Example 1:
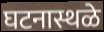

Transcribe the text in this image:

घटनास्थळे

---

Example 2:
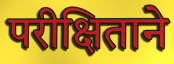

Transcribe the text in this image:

परीक्षिताने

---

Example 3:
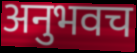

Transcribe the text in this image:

अनुभवच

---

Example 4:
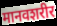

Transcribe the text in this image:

मानवशरीर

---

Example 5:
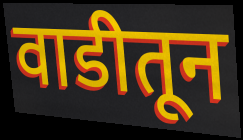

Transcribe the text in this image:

वाडीतून